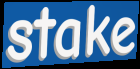
stake